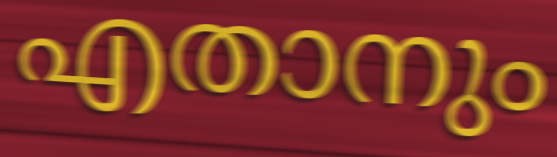
എതാനും